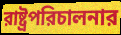
রাষ্ট্রপরিচালনার